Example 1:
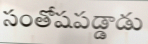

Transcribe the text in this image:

సంతోషపడ్డాడు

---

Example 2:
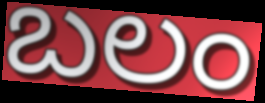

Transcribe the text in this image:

బలం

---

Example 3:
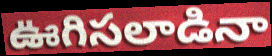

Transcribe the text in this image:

ఊగిసలాడినా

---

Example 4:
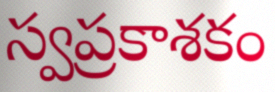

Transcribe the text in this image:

స్వప్రకాశకం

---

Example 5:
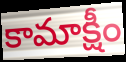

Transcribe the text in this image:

కామాక్షీం